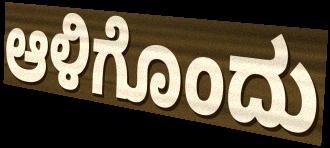
ಆಳಿಗೊಂದು